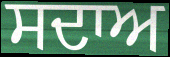
ਸਦਾਅ